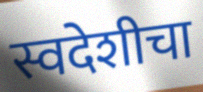
स्वदेशीचा